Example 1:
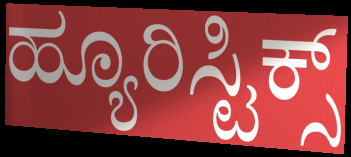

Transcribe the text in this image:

ಹ್ಯೂರಿಸ್ಟಿಕ್ಸ್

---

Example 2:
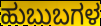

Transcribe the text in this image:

ಹುಬುಬಗಳ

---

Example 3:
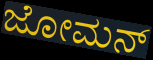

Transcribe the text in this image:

ಜೋಮನ್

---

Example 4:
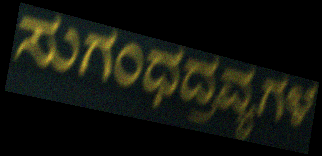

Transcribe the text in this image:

ಸುಗಂಧದ್ರವ್ಯಗಳ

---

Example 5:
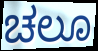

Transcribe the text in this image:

ಚಲೂ